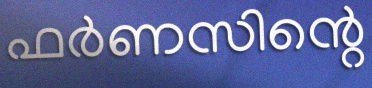
ഫർണസിന്റെ